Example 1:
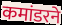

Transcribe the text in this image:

कमांडरने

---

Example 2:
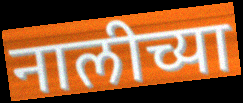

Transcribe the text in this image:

नालीच्या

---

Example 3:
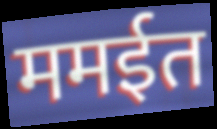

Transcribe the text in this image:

ममईत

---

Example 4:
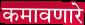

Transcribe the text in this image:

कमावणारे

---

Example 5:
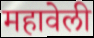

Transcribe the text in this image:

महावेली